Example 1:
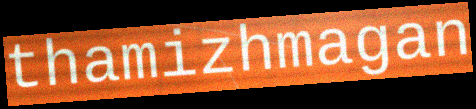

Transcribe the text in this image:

thamizhmagan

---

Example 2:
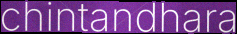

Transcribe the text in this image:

chintandhara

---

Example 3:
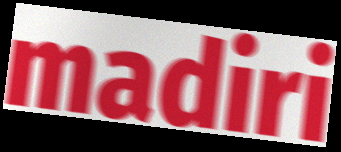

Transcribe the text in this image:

madiri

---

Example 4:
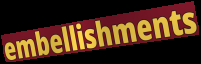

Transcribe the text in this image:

embellishments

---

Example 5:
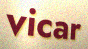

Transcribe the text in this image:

vicar